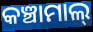
କଞ୍ଚାମାଲ୍